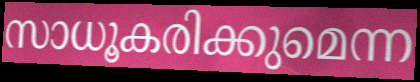
സാധൂകരിക്കുമെന്ന